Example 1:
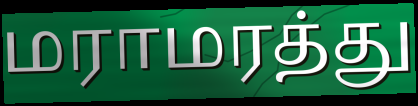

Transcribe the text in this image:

மராமரத்து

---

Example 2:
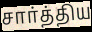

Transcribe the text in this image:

சார்த்திய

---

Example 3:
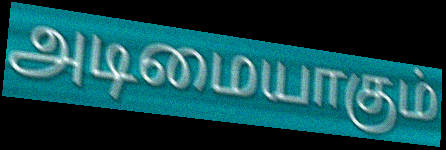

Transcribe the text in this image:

அடிமையாகும்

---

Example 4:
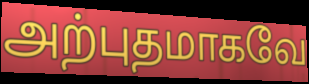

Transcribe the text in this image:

அற்புதமாகவே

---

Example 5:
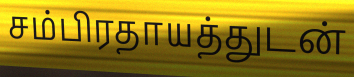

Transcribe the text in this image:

சம்பிரதாயத்துடன்